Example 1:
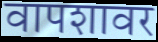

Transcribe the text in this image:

वापशावर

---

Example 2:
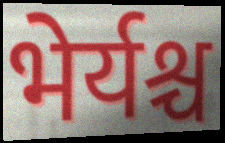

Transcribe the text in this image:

भेर्यश्च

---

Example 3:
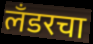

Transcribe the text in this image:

लँडरचा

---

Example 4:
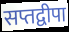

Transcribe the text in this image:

सप्तद्वीपा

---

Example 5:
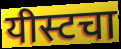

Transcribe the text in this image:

यीस्टचा